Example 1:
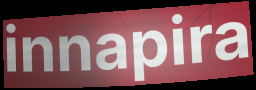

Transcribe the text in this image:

innapira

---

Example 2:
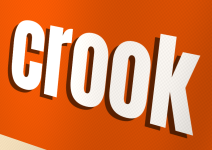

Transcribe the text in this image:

crook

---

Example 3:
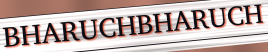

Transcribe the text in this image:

BHARUCHBHARUCH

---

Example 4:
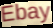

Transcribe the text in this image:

Ebay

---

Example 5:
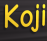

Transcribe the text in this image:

Koji